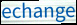
echange